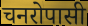
चनरोपासी